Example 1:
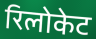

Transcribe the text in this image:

रिलोकेट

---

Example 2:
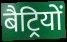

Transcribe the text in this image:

बैट्रियों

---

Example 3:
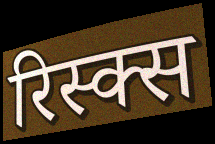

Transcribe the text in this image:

रिस्क्स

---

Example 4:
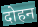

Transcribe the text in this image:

दोहन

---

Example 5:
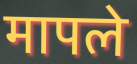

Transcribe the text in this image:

मापले